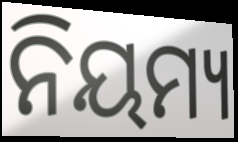
ନିୟମ୍ୟ